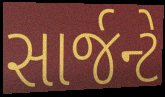
સાર્જન્ટે